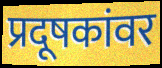
प्रदूषकांवर